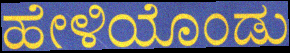
ಹೇಳಿಯೊಂಡು